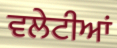
ਵਲੇਟੀਆਂ